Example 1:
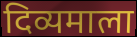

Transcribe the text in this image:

दिव्यमाला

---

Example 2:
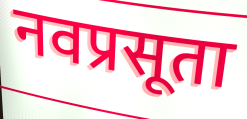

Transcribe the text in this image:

नवप्रसूता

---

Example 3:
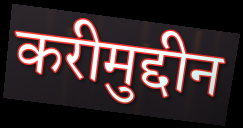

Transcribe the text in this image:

करीमुद्दीन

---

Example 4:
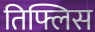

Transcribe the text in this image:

तिफ्लिस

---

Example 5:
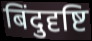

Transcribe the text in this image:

बिंदुदृष्टि